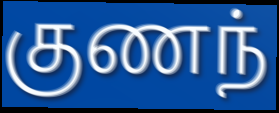
குணந்